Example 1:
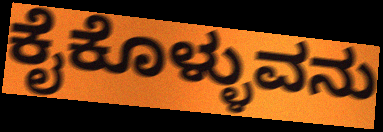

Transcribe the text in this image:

ಕೈಕೊಳ್ಳುವನು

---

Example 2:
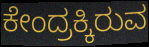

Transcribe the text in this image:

ಕೇಂದ್ರಕ್ಕಿರುವ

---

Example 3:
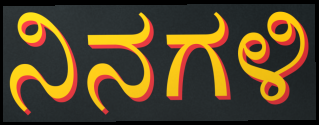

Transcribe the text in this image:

ನಿನಗಳಿ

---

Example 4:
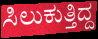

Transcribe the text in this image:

ಸಿಲುಕುತ್ತಿದ್ದ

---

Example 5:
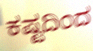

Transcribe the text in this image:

ಕಷ್ಟದಿಂದ